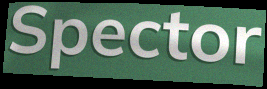
Spector